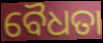
ବୈଧତା